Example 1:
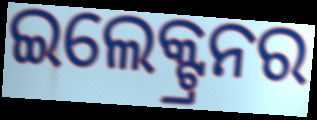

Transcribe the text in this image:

ଇଲେକ୍ଟ୍ରନର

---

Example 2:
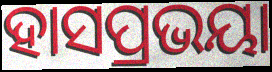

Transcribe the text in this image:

ହାସପ୍ରଭୟା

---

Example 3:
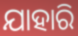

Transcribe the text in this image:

ଯାହାରି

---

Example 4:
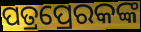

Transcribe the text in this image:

ପତ୍ରପ୍ରେରକଙ୍କ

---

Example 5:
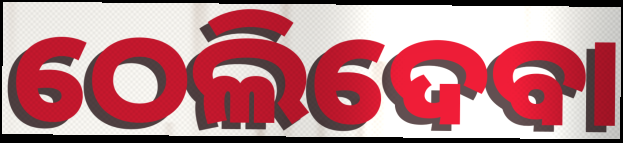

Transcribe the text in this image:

ଠେଲିଦେବା